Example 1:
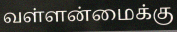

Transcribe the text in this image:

வள்ளன்மைக்கு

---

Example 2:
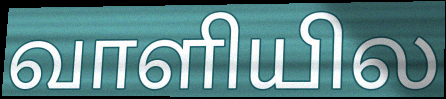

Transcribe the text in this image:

வாளியில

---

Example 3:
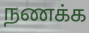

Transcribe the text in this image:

நணக்க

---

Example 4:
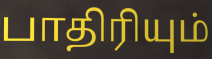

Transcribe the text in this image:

பாதிரியும்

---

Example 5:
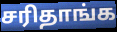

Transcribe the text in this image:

சரிதாங்க